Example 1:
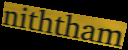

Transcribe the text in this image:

niththam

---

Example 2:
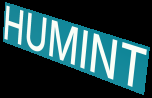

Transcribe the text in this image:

HUMINT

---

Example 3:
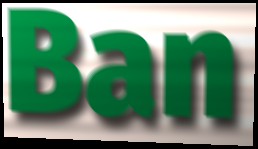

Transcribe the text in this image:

Ban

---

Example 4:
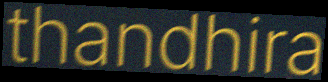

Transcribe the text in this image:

thandhira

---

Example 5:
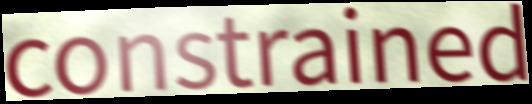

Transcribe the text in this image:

constrained